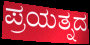
ಪ್ರಯತ್ನದ